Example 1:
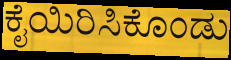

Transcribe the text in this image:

ಕೈಯಿರಿಸಿಕೊಂಡು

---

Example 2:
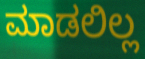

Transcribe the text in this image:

ಮಾಡಲಿಲ್ಲ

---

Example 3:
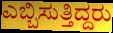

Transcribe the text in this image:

ಎಬ್ಬಿಸುತ್ತಿದ್ದರು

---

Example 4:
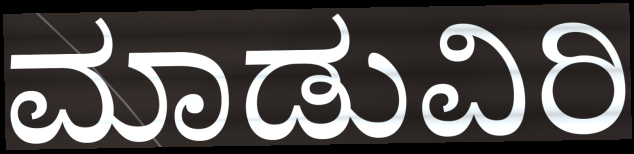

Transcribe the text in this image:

ಮಾಡುವಿರಿ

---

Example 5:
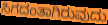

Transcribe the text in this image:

ಸಿಗದಂತಾಗಿರುವುದು